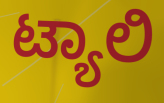
ಟ್ಯಾಲಿ